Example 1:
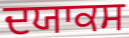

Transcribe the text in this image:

ਦਯਾਕਸ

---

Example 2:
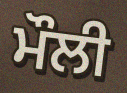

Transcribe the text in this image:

ਮੌਲੀ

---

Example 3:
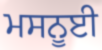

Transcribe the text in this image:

ਮਸਨੂਈ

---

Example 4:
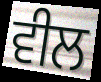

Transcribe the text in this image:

ਵੀਲ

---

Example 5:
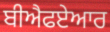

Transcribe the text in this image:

ਬੀਐਫਏਆਰ